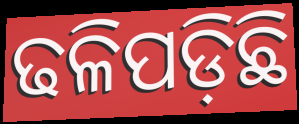
ଢଳିପଡ଼ିଛି